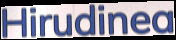
Hirudinea